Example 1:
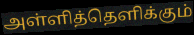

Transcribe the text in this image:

அள்ளித்தெளிக்கும்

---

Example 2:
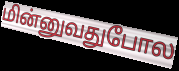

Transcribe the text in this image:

மின்னுவதுபோல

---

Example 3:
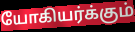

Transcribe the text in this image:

யோகியர்க்கும்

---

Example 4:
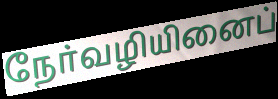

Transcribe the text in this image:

நேர்வழியினைப்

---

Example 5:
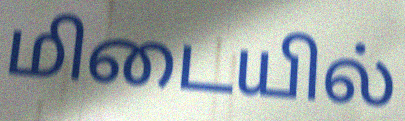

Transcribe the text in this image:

மிடையில்